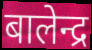
बालेन्द्र